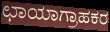
ಛಾಯಾಗ್ರಾಹಕರ